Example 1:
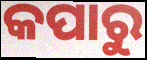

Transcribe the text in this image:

କପାରୁ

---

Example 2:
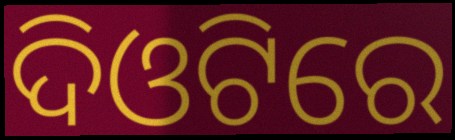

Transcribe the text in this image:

ଦିଓଟିରେ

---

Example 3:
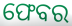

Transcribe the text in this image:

ଫେବର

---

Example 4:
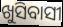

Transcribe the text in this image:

ଖୁସିବାସୀ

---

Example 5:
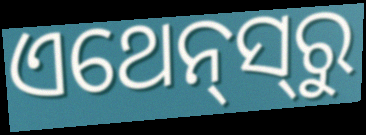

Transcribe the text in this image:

ଏଥେନ୍‌ସ୍‌ରୁ